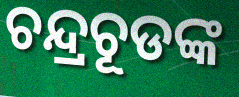
ଚନ୍ଦ୍ରଚୂଡଙ୍କ